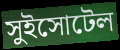
সুইসোটেল